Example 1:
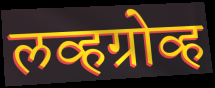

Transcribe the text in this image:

लव्हग्रोव्ह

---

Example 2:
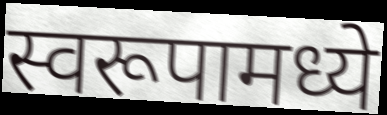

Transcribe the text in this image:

स्वरूपामध्ये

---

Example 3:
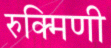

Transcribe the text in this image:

रुक्‍मिणी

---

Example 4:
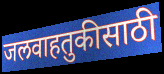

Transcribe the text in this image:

जलवाहतुकीसाठी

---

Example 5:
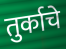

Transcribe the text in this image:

तुर्काचे